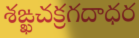
శఙ్ఖచక్రగదాధర